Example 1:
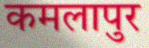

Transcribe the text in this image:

कमलापुर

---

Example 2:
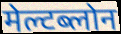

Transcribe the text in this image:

मेल्टब्लोन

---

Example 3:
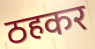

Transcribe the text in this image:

ठहकर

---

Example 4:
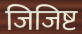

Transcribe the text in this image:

जिजिष्ट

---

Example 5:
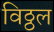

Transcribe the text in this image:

विठ्ठल